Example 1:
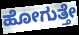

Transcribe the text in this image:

ಹೋಗುತ್ತೇ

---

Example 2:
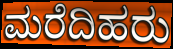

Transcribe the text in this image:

ಮರೆದಿಹರು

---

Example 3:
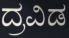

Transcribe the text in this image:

ದ್ರವಿಡ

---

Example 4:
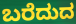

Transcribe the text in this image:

ಬರೆದುದ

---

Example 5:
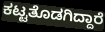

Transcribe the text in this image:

ಕಟ್ಟತೊಡಗಿದ್ದಾರೆ